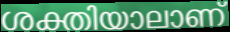
ശക്തിയാലാണ്